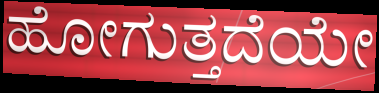
ಹೋಗುತ್ತದೆಯೇ